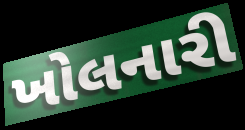
ખોલનારી